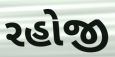
રહોજી